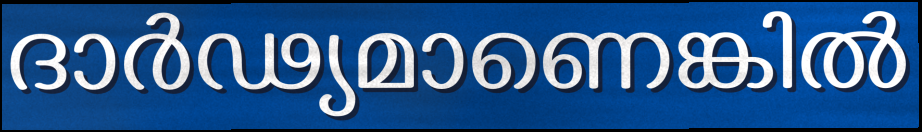
ദാർഢ്യമാണെങ്കിൽ